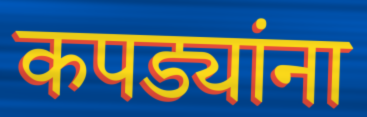
कपड्यांना